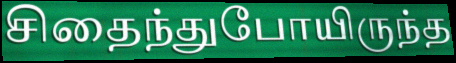
சிதைந்துபோயிருந்த